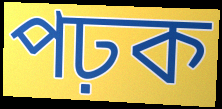
পঢ়ক